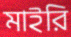
মাইরি